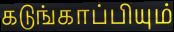
கடுங்காப்பியும்